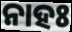
ନାହଃ